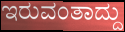
ಇರುವಂತಾದ್ದು